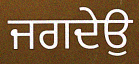
ਜਗਦੇਉ